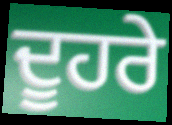
ਦੂਹਰੇ